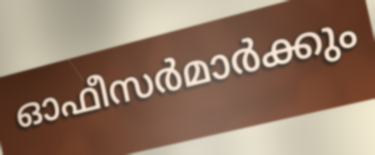
ഓഫീസർമാർക്കും